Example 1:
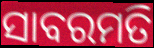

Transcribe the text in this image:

ସାବରମତି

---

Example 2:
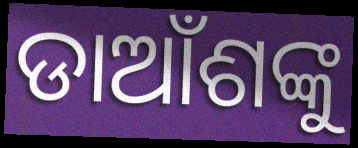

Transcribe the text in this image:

ଡାଆଁଶଙ୍କୁ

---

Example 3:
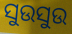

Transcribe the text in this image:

ସୁଉସୁଉ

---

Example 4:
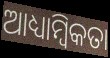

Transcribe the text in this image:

ଆଧ୍ୟାମ୍ବିକତା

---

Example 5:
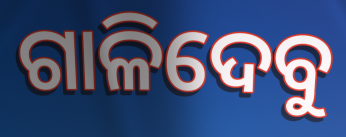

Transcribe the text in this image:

ଗାଳିଦେବୁ